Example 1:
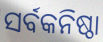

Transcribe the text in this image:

ସର୍ବକନିଷ୍ଠା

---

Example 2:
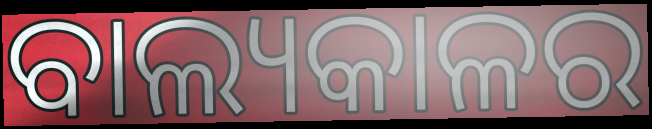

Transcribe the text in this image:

ବାଲ୍ୟକାଳର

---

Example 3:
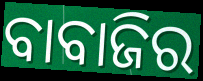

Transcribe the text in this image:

ବାବାଜିର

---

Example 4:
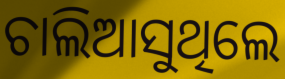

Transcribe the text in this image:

ଚାଲିଆସୁଥିଲେ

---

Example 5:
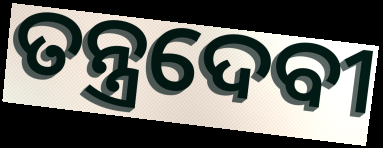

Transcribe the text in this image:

ତନ୍ତ୍ରଦେବୀ